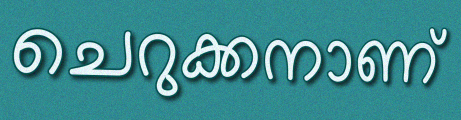
ചെറുക്കനാണ്